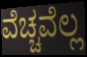
ವೆಚ್ಚವೆಲ್ಲ